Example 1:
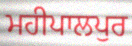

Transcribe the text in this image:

ਮਹੀਪਾਲਪੁਰ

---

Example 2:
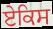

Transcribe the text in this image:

ਏਕਿਸ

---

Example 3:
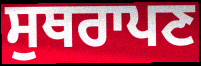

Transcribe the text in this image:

ਸੁਥਰਾਪਣ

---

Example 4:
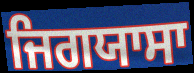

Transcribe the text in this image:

ਜਿਗਯਾਸਾ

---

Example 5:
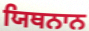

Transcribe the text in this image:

ਯਿਥਨਾਨ